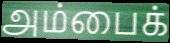
அம்பைக்